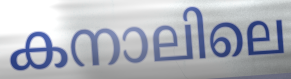
കനാലിലെ